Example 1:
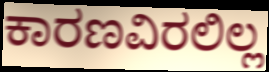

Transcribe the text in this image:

ಕಾರಣವಿರಲಿಲ್ಲ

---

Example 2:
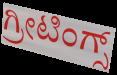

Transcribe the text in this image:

ಗ್ರೀಟಿಂಗ್ಸ್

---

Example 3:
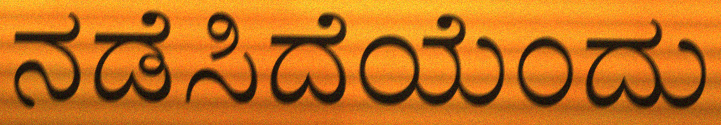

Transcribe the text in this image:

ನಡೆಸಿದೆಯೆಂದು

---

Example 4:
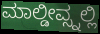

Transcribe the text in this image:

ಮಾಲ್ಡೀವ್ಸ್ನಲ್ಲಿ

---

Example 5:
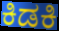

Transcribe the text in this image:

ಕಿಡಕಿ